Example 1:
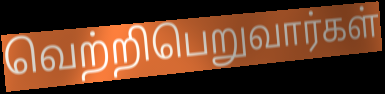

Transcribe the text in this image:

வெற்றிபெறுவார்கள்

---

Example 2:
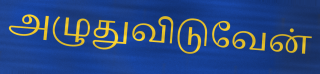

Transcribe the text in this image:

அழுதுவிடுவேன்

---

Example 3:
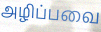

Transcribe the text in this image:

அழிப்பவை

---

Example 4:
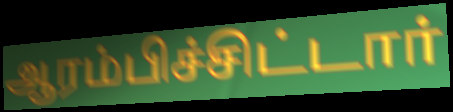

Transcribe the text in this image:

ஆரம்பிச்சிட்டார்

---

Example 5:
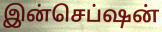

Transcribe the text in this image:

இன்செப்ஷன்